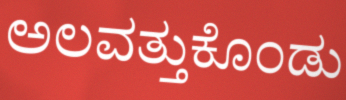
ಅಲವತ್ತುಕೊಂಡು